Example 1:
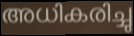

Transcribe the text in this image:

അധികരിച്ചു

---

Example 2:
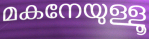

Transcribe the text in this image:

മകനേയുള്ളൂ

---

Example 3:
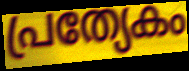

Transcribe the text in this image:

പ്രത്യേകം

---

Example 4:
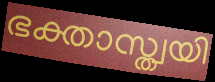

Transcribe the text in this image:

ഭക്താസ്ത്വയി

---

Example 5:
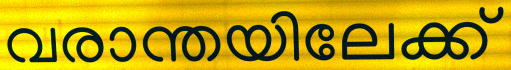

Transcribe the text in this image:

വരാന്തയിലേക്ക്